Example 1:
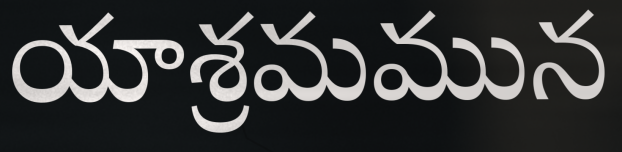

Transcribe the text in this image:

యాశ్రమమున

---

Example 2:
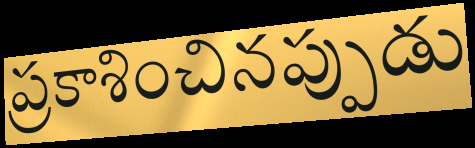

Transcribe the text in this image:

ప్రకాశించినప్పుడు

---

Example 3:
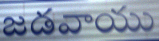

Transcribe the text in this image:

జడవాయు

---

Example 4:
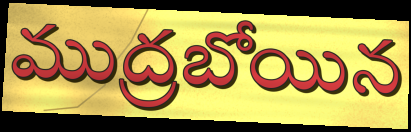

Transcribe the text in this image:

ముద్రబోయిన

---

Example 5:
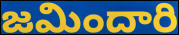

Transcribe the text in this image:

జమిందారి